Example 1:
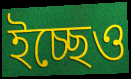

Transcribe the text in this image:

ইচ্ছেও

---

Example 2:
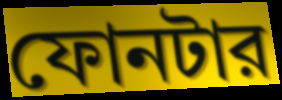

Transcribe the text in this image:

ফোনটার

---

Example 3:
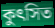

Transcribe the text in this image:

কুৎসিত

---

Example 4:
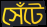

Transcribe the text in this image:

সেঁটে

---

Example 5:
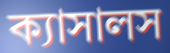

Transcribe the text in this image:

ক্যাসালস